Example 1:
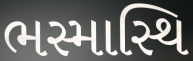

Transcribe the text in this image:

ભસ્માસ્થિ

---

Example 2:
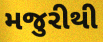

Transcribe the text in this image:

મજુરીથી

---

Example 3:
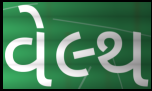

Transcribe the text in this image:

વેલ્થ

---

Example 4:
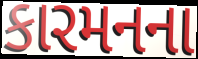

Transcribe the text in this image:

કારમનના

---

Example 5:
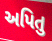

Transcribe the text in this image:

અપિતુ